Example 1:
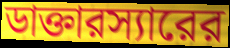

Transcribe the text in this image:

ডাক্তারস্যারের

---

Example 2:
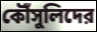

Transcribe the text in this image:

কৌঁসুলিদের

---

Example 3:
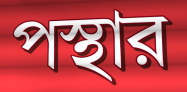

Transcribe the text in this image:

পস্থার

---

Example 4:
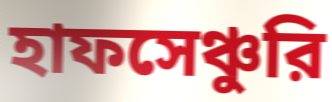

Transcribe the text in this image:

হাফসেঞ্চুরি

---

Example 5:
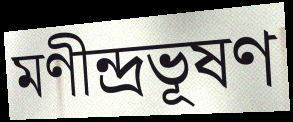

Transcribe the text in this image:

মণীন্দ্রভূষণ